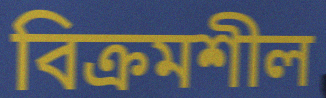
বিক্ৰমশীল